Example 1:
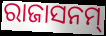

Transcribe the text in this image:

ରାଜାସନମ୍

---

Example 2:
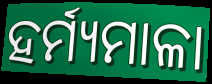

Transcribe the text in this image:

ହର୍ମ୍ୟମାଳା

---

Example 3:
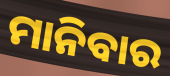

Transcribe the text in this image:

ମାନିବାର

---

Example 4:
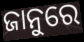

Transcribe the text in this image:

ଜାନୁରେ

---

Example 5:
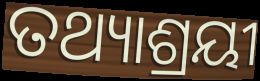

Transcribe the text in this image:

ତଥ୍ୟାଶ୍ରୟୀ